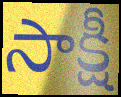
సాక్షీ